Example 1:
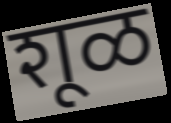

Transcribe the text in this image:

शूळ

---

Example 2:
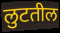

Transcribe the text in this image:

लुटतील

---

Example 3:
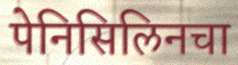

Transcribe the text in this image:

पेनिसिलिनचा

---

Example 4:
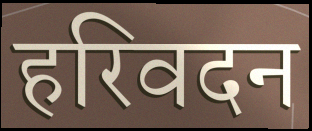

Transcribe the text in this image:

हरिवदन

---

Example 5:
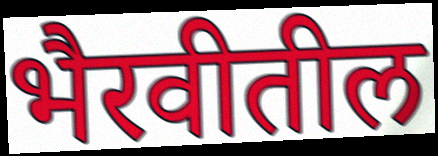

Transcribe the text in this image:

भैरवीतील